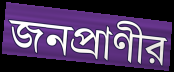
জনপ্রাণীর